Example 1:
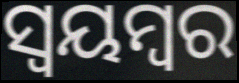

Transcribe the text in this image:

ସ୍ଵୟମ୍ବର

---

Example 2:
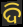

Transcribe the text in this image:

ଦି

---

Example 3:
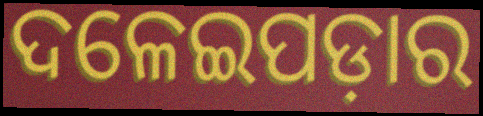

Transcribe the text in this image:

ଦଳେଇପଡ଼ାର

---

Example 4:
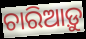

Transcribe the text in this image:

ଚାରିଆଡ଼ୁ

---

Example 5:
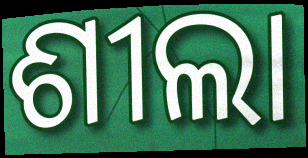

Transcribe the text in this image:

ଶୀଲା